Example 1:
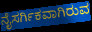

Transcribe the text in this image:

ನೈಸರ್ಗಿಕವಾಗಿರುವ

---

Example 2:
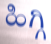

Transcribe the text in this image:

ಹಿಗ್ಗಿ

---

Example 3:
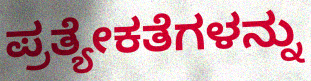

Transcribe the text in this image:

ಪ್ರತ್ಯೇಕತೆಗಳನ್ನು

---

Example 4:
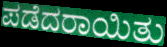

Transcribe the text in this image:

ಪಡೆದರಾಯಿತು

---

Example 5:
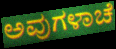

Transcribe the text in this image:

ಅವುಗಳಾಚೆ